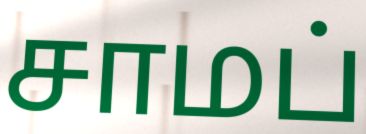
சாமப்